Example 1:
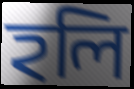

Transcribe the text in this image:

হলি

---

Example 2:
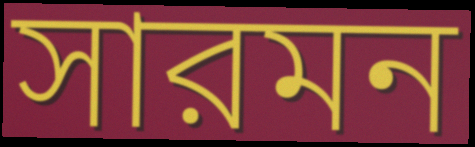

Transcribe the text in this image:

সারমন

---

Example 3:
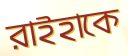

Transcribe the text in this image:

রাইহাকে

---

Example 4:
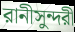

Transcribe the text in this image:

রানীসুন্দরী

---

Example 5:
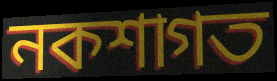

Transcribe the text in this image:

নকশাগত